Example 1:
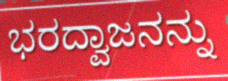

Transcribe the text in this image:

ಭರದ್ವಾಜನನ್ನು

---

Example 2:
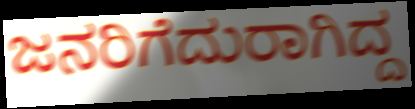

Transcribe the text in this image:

ಜನರಿಗೆದುರಾಗಿದ್ದ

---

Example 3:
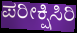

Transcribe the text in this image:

ಪರೀಕ್ಷಿಸಿರಿ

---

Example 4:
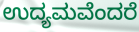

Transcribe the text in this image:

ಉದ್ಯಮವೆಂದರೆ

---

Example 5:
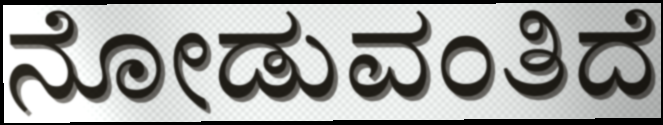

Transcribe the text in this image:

ನೋಡುವಂತಿದೆ